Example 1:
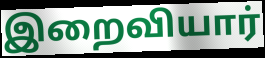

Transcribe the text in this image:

இறைவியார்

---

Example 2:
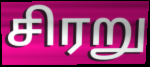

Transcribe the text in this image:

சிரறு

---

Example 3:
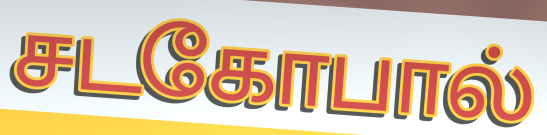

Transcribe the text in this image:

சடகோபால்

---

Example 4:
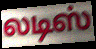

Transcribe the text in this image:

லடிஸ்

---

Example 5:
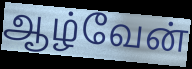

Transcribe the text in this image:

ஆழ்வேன்